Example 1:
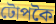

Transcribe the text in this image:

টোপকৈ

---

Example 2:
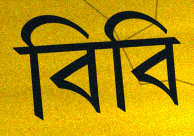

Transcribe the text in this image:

বিবি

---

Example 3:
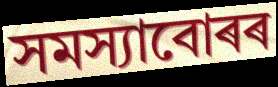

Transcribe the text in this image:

সমস্যাবোৰৰ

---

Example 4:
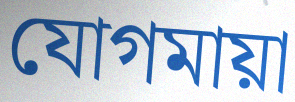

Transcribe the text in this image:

যোগমায়া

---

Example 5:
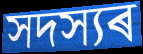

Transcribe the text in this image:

সদস্যৰ